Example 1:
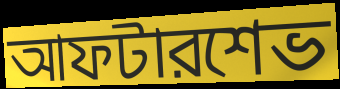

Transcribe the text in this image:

আফটারশেভ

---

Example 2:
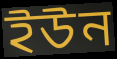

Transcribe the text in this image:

ইউন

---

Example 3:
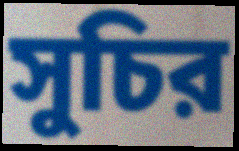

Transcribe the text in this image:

সুচির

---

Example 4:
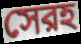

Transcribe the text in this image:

সেরহ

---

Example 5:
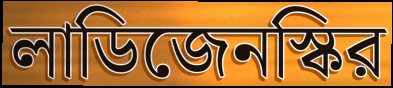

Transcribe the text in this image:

লাডিজেনস্কির